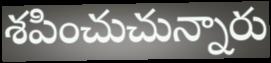
శపించుచున్నారు